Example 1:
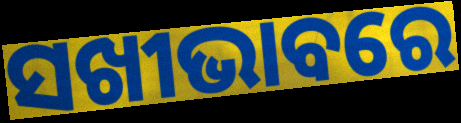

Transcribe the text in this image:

ସଖୀଭାବରେ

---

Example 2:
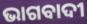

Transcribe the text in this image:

ଭାଗବାଦୀ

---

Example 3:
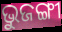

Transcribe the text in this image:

ଭୁଜଙ୍ଗୀ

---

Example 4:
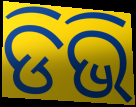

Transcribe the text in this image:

ଡିଭି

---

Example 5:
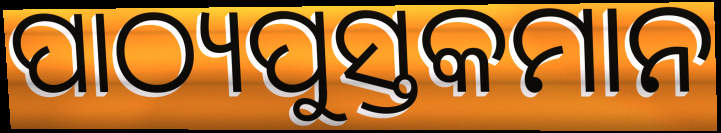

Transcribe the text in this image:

ପାଠ୍ୟପୁସ୍ତକମାନ